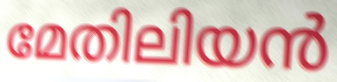
മേതിലിയൻ